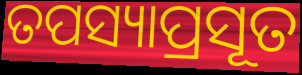
ତପସ୍ୟାପ୍ରସୂତ